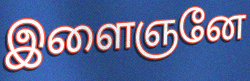
இளைஞனே